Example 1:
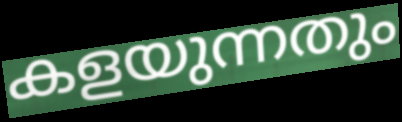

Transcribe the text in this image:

കളയുന്നതും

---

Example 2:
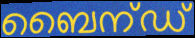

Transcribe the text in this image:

ബൈന്ഡ്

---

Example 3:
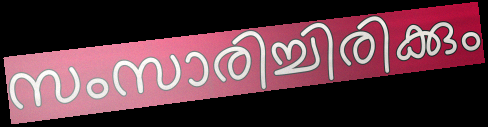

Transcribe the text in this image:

സംസാരിച്ചിരിക്കും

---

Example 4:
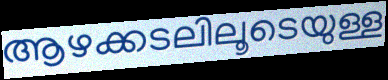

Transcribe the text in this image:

ആഴക്കടലിലൂടെയുള്ള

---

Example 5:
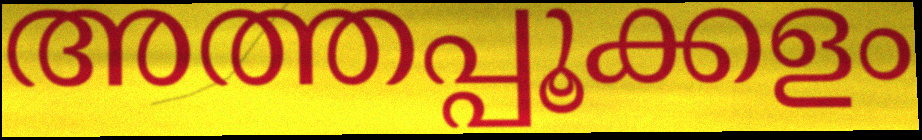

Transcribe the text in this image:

അത്തപ്പൂക്കളം